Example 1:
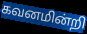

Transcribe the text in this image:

கவனமின்றி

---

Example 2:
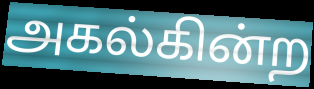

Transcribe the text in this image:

அகல்கின்ற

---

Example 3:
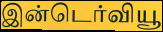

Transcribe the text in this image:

இன்டெர்வியூ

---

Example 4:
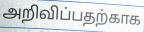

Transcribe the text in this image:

அறிவிப்பதற்காக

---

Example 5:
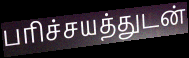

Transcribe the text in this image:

பரிச்சயத்துடன்